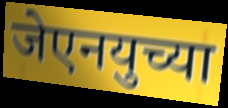
जेएनयुच्या